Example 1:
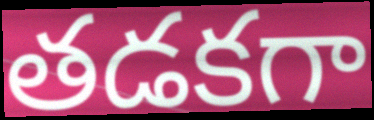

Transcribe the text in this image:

తడకగా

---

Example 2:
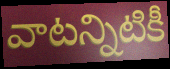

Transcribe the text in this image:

వాటన్నిటికీ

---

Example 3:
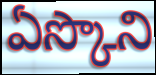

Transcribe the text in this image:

ఏస్కొని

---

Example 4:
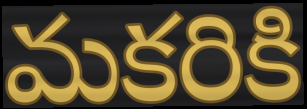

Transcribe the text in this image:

మకరికి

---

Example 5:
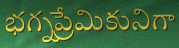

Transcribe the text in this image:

భగ్నప్రేమికునిగా